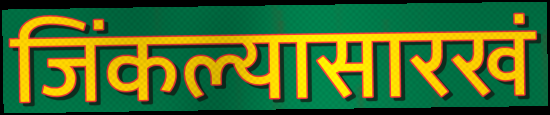
जिंकल्यासारखं